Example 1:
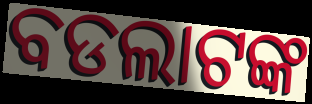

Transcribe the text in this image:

ବଡଲାଟଙ୍କ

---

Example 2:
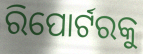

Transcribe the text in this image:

ରିପୋର୍ଟରକୁ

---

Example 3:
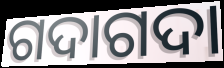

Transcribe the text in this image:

ଗଦାଗଦା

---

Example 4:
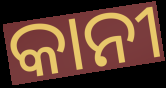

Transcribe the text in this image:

କାନୀ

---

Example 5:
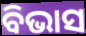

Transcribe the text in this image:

ବିଭାସ